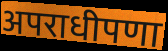
अपराधीपणा